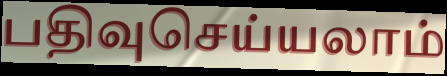
பதிவுசெய்யலாம்